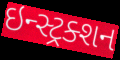
ઇન્સ્ટ્રક્શન